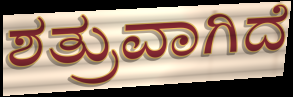
ಶತ್ರುವಾಗಿದೆ